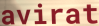
avirat